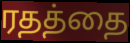
ரதத்தை